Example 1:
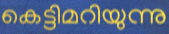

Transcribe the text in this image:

കെട്ടിമറിയുന്നു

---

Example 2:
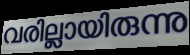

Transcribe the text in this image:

വരില്ലായിരുന്നു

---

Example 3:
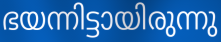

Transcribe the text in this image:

ഭയന്നിട്ടായിരുന്നു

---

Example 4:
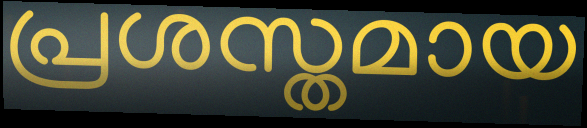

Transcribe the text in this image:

പ്രശസ്തമായ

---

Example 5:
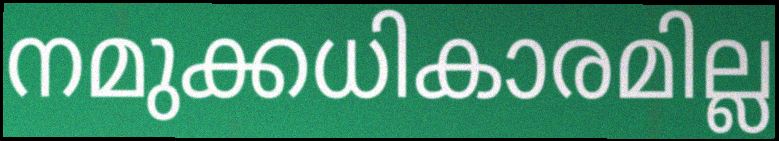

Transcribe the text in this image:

നമുക്കധികാരമില്ല